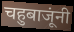
चहुबाजूंनी